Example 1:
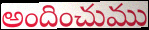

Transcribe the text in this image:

అందించుము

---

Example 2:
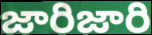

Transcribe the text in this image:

జారిజారి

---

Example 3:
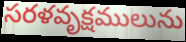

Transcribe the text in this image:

సరళవృక్షములును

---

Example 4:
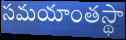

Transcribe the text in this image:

సమయాంతస్థా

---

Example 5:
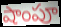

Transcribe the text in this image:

షాంపూ